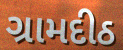
ગ્રામદીઠ